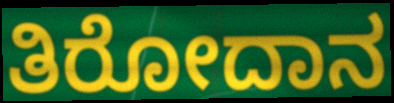
ತಿರೋದಾನ